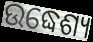
ଉଦ୍ଧେଶ୍ୟ